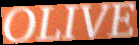
OLIVE